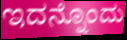
ಇದನ್ನೊಂದು